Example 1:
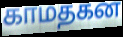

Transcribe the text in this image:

காமதகன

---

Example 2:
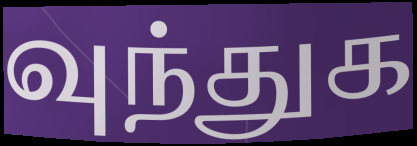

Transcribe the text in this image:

வுந்துக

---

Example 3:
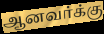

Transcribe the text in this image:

ஆனவர்க்கு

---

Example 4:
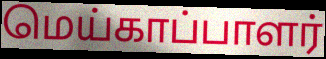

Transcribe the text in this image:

மெய்காப்பாளர்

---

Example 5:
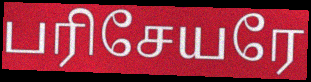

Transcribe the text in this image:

பரிசேயரே